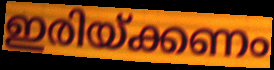
ഇരിയ്ക്കണം